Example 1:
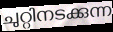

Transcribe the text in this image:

ചുറ്റിനടക്കുന്ന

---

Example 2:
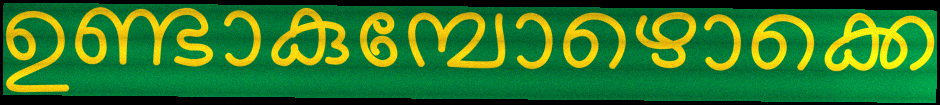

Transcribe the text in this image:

ഉണ്ടാകുമ്പോഴൊക്കെ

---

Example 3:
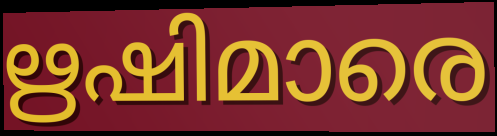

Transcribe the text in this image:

ഋഷിമാരെ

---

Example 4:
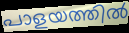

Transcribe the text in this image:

പാളയത്തിൽ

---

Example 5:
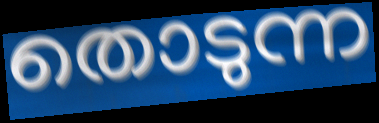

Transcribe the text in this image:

തൊടുന്ന